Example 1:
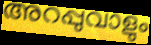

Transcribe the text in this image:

അറപ്പുവാളും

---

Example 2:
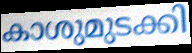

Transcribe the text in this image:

കാശുമുടക്കി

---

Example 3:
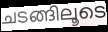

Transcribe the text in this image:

ചടങ്ങിലൂടെ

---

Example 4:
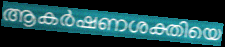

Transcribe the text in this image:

ആകർഷണശക്തിയെ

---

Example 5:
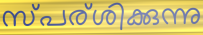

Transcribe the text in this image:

സ്പര്ശിക്കുന്നു